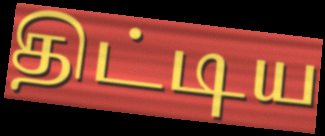
திட்டிய